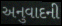
અનુવાદની